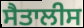
ਸੈਤਾਲੀਸ